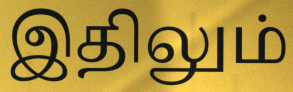
இதிலும்